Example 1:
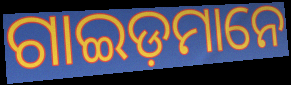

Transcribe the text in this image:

ଗାଇଡ଼ମାନେ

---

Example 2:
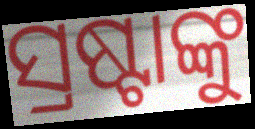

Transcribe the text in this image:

ସ୍ରଷ୍ଟାଙ୍କୁ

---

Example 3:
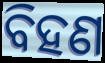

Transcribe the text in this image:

ବିହଣ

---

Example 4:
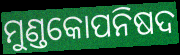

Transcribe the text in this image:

ମୁଣ୍ଡକୋପନିଷଦ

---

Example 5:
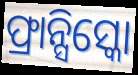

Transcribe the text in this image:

ଫ୍ରାନ୍ସିସ୍କୋ